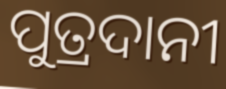
ପୁତ୍ରଦାନୀ